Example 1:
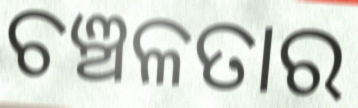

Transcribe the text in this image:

ଚଞ୍ଚଳତାର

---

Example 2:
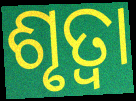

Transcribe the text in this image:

ଶୃତ୍ୱା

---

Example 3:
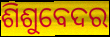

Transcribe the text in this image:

ଶିଶୁବେଦର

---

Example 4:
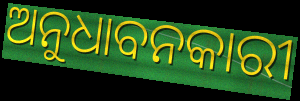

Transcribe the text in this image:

ଅନୁଧାବନକାରୀ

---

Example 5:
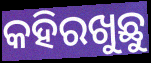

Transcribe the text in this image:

କହିରଖୁଛୁ